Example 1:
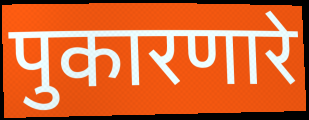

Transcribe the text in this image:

पुकारणारे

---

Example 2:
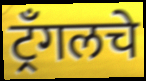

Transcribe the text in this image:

ट्रँगलचे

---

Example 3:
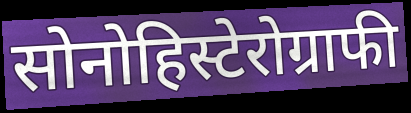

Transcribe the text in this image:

सोनोहिस्टेरोग्राफी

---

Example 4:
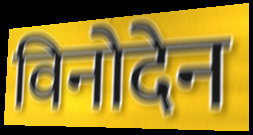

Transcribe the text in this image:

विनोदेन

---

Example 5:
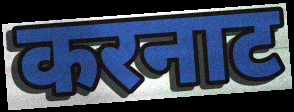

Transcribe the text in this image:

करनाट